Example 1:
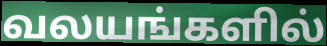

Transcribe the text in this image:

வலயங்களில்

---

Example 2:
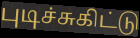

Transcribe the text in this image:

புடிச்சுகிட்டு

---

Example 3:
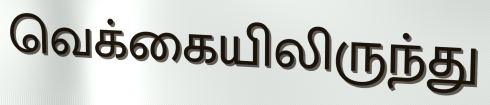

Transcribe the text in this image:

வெக்கையிலிருந்து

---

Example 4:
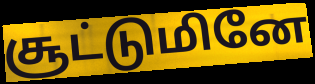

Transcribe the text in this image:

சூட்டுமினே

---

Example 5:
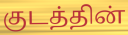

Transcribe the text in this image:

குடத்தின்